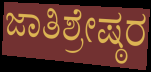
ಜಾತಿಶ್ರೇಷ್ಠರ